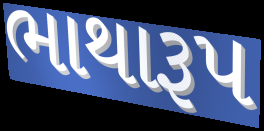
ભાથારૂપ